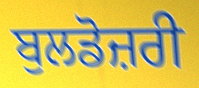
ਬੁਲਡੋਜ਼ਰੀ